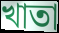
খাতা